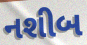
નશીબ